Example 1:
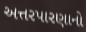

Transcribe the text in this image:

અત્તરપારણાનો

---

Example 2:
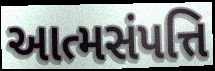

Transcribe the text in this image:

આત્મસંપત્તિ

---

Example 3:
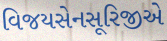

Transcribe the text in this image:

વિજયસેનસૂરિજીએ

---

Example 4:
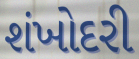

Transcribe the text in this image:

શંખોદરી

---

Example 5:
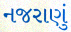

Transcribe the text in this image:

નજરાણું